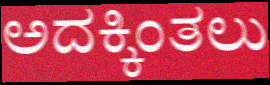
ಅದಕ್ಕಿಂತಲು